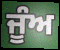
ਜੂੰਅ